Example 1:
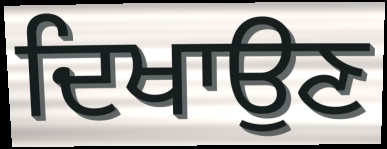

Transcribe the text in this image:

ਦਿਖਾਉਣ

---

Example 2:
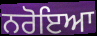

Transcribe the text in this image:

ਨਰੋਇਆ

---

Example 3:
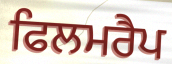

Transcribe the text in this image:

ਫਿਲਮਰੈਪ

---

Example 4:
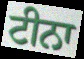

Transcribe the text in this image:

ਟੀਨਾ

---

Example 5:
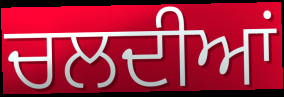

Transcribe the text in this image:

ਚਲਦੀਆਂ